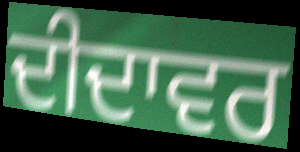
ਦੀਦਾਵਰ